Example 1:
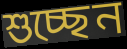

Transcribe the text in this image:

শুচ্ছেন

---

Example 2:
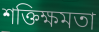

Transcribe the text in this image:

শক্তিক্ষমতা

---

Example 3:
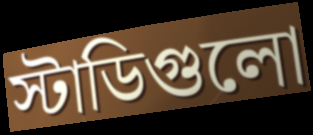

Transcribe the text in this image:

স্টাডিগুলো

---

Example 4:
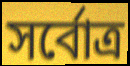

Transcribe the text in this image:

সর্বোত্র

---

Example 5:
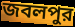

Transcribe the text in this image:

জবলপুর